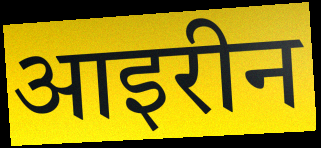
आइरीन